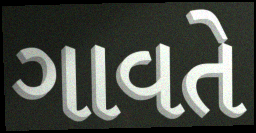
ગાવતે